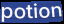
potion